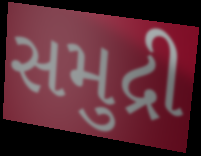
સમુદ્રી